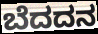
ಬೆದದನ